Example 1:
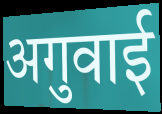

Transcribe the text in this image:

अगुवाई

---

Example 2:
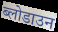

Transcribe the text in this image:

ब्लोडाउन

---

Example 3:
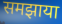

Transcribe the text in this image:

समझाया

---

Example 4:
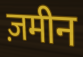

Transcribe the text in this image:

ज़मीन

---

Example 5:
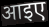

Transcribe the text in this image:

आइए